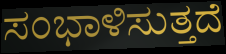
ಸಂಭಾಳಿಸುತ್ತದೆ